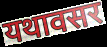
यथावसर